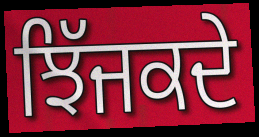
ਝਿੱਜਕਦੇ